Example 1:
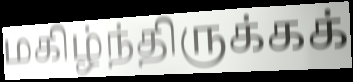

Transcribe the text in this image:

மகிழ்ந்திருக்கக்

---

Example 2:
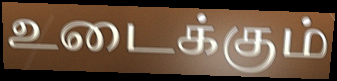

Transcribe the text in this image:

உடைக்கும்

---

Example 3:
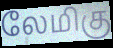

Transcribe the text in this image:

லேமிகு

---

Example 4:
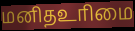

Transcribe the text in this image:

மனிதஉரிமை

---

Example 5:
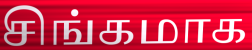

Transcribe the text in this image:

சிங்கமாக